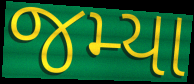
જમ્યા